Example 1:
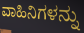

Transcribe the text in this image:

ವಾಹಿನಿಗಳನ್ನು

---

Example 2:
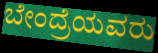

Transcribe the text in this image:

ಬೇಂದ್ರೆಯವರು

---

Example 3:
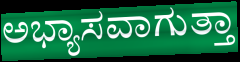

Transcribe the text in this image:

ಅಭ್ಯಾಸವಾಗುತ್ತಾ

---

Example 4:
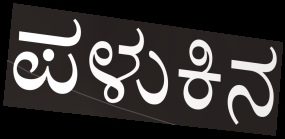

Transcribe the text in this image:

ಪಳುಕಿನ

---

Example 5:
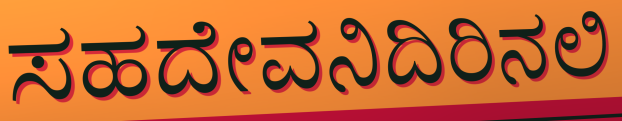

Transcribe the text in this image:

ಸಹದೇವನಿದಿರಿನಲಿ